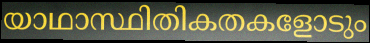
യാഥാസ്ഥിതികതകളോടും